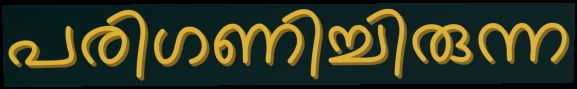
പരിഗണിച്ചിരുന്ന